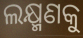
ଲକ୍ଷ୍ମଣକୁ